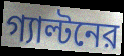
গ্যাল্টনের